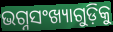
ଭଗ୍ନସଂଖ୍ୟାଗୁଡ଼ିକୁ